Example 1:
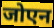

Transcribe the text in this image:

जोएन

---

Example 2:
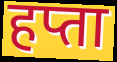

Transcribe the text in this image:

हप्ता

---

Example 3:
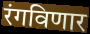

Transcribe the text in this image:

रंगविणार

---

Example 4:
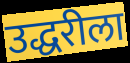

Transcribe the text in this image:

उद्धरीला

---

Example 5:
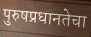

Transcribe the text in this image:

पुरुषप्रधानतेचा